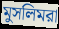
মুসলিমরা